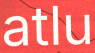
atlu